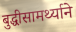
बुद्धीसामर्थ्याने